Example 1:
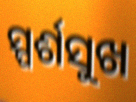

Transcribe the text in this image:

ସ୍ପର୍ଶସୁଖ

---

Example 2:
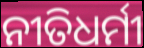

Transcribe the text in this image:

ନୀତିଧର୍ମୀ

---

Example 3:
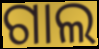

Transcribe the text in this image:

ଗାଲ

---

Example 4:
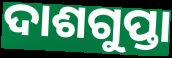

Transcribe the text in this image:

ଦାଶଗୁପ୍ତା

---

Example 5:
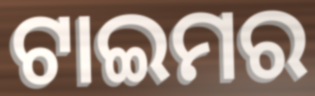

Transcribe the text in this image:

ଟାଇମର